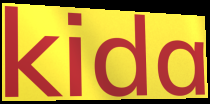
kida